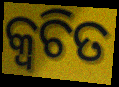
କ୍ୱଚିତ